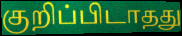
குறிப்பிடாதது